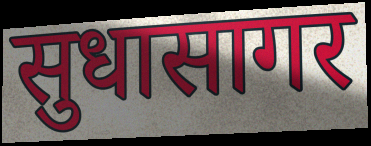
सुधासागर